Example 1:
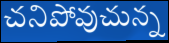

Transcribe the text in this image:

చనిపోవుచున్న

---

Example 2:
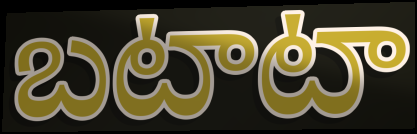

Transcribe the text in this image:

బటాటా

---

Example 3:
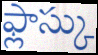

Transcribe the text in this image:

ఫ్లాస్కు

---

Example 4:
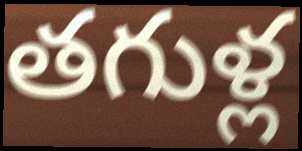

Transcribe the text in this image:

తగుళ్ల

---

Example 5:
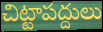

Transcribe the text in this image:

చిట్టాపద్దులు